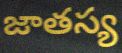
జాతస్య